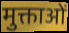
मुक्ताओं